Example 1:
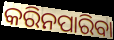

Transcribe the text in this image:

କରିନପାରିବା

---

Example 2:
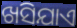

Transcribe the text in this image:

ଖସିଯାଏ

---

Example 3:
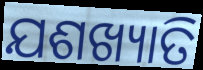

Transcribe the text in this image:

ଯଶଖ୍ୟାତି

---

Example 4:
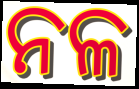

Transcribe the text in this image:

ନଳ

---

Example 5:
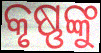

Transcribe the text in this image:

କୃଷ୍ଣଙ୍କୁ